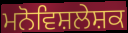
ਮਨੋਵਿਸ਼ਲੇਸ਼ਕ